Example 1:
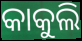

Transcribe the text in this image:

କାକୁଲି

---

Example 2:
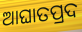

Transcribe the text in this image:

ଆଘାତପ୍ରଦ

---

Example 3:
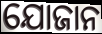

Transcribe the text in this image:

ଯୋଜାନ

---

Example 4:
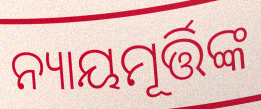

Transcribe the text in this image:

ନ୍ୟାୟମୂର୍ତ୍ତିଙ୍କ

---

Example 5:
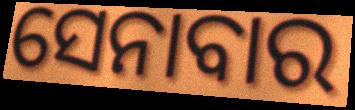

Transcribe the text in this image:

ସେନାବାର